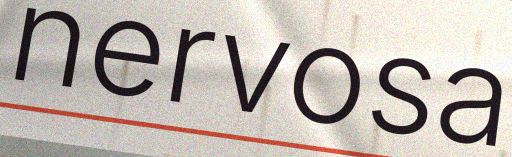
nervosa